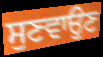
ਸੁਣਵਾਉਣ